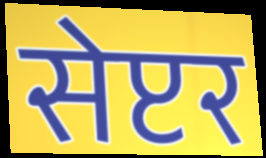
सेप्टर